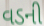
વડની